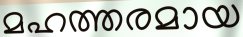
മഹത്തരമായ